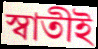
স্বাতীই